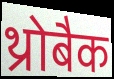
थ्रोबैक